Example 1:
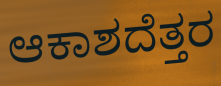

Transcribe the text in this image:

ಆಕಾಶದೆತ್ತರ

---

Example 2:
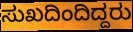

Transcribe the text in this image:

ಸುಖದಿಂದಿದ್ದರು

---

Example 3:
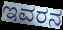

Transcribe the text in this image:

ಇವರನ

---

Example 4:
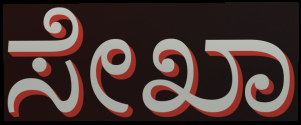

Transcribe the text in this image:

ಸೇಖಾ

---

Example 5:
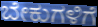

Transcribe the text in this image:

ಬೇಕುಗಳಿಗೆ